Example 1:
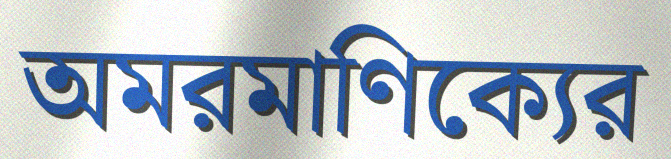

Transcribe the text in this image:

অমরমাণিক্যের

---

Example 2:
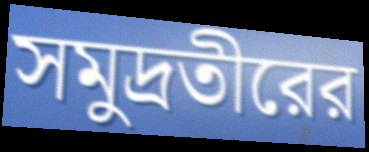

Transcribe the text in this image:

সমুদ্রতীরের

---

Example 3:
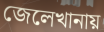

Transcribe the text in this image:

জেলেখানায়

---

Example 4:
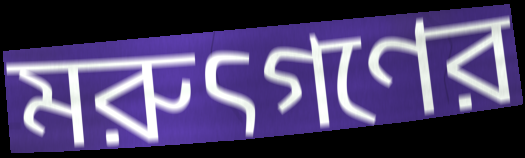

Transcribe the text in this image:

মরুৎগণের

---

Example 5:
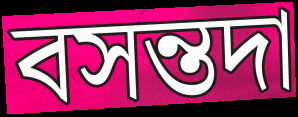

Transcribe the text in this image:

বসন্তদা